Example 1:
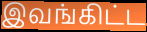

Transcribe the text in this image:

இவங்கிட்ட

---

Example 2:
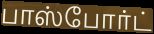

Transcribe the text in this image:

பாஸ்போர்ட்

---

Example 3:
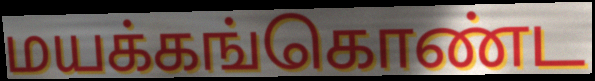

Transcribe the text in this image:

மயக்கங்கொண்ட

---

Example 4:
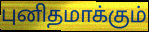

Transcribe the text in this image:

புனிதமாக்கும்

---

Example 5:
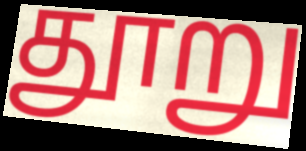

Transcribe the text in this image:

தூறு